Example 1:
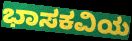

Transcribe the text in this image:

ಭಾಸಕವಿಯ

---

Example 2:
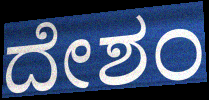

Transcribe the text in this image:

ದೇಶಂ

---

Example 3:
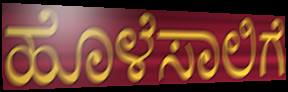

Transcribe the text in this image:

ಹೊಳೆಸಾಲಿಗೆ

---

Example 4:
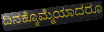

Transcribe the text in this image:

ದಿನಕ್ಕೊಮ್ಮೆಯಾದರೂ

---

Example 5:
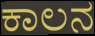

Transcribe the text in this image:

ಕಾಲನ